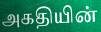
அகதியின்